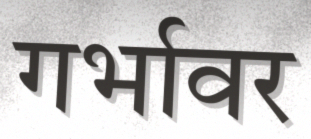
गर्भावर